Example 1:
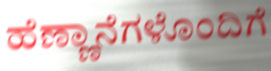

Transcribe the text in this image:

ಹೆಣ್ಣಾನೆಗಳೊಂದಿಗೆ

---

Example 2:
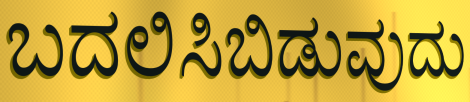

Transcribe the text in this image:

ಬದಲಿಸಿಬಿಡುವುದು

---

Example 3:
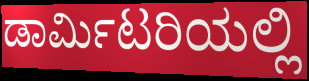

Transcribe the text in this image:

ಡಾರ್ಮಿಟರಿಯಲ್ಲಿ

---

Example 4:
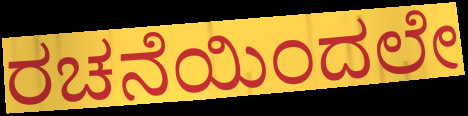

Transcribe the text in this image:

ರಚನೆಯಿಂದಲೇ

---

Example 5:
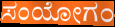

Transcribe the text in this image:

ಸಂಯೋಗಂ